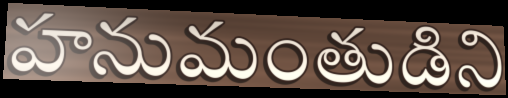
హనుమంతుడిని